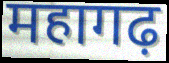
महागढ़